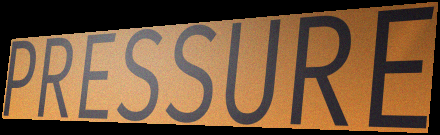
PRESSURE